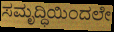
ಸಮೃದ್ಧಿಯಿಂದಲೇ